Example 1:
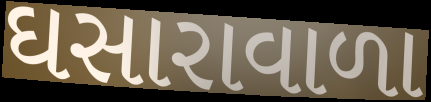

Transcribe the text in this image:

ઘસારાવાળા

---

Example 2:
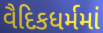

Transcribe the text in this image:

વૈદિકધર્મમાં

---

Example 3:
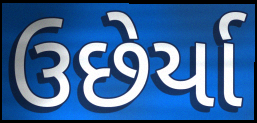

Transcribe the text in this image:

ઉછેર્યા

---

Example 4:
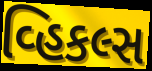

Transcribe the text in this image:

વ્હિકલ્સ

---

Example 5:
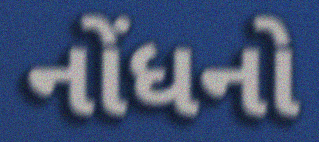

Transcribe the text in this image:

નોંધનો